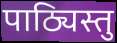
पाठ्यिस्तु